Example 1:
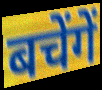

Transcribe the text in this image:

बचेंगें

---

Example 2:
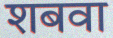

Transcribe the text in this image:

शबवा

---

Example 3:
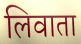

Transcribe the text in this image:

लिवाता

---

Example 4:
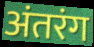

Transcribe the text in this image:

अंतरंग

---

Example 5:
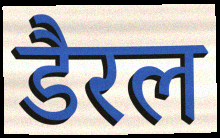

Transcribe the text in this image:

डैरल